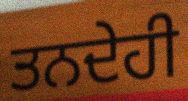
ਤਨਦੇਹੀ